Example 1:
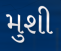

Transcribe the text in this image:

મુશી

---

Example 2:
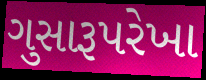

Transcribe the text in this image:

ગુસારૂપરેખા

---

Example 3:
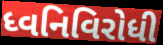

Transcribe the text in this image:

ધ્વનિવિરોધી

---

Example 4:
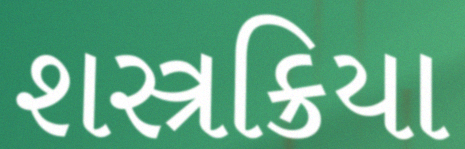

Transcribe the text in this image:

શસ્ત્રક્રિયા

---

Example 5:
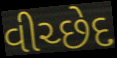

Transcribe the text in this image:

વીચ્છેદ